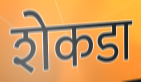
शेकडा